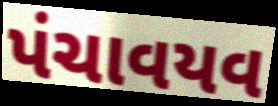
પંચાવયવ